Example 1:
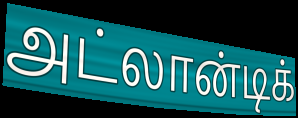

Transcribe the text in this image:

அட்லான்டிக்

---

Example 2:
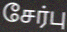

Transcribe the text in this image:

சேர்பு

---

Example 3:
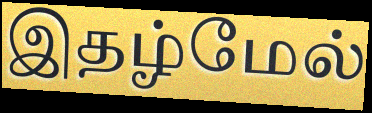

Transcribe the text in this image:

இதழ்மேல்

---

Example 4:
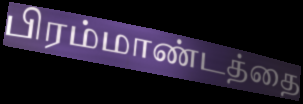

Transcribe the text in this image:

பிரம்மாண்டத்தை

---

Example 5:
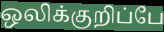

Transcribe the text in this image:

ஒலிக்குறிப்பே